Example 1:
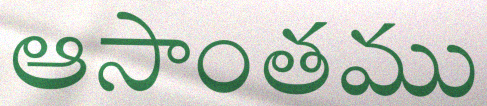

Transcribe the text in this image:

ఆసాంతము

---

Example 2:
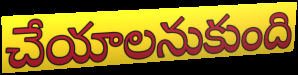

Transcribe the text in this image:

చేయాలనుకుంది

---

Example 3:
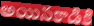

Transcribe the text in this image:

అయినకాడికి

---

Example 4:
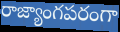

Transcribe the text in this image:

రాజ్యాంగపరంగా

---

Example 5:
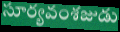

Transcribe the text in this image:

సూర్యవంశజుడు